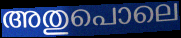
അതുപൊലെ